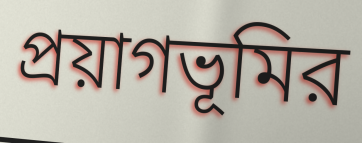
প্রয়াগভূমির